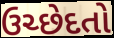
ઉચ્છેદતો